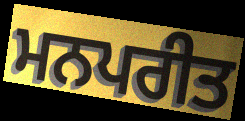
ਮਨਪਰੀਤ